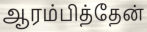
ஆரம்பித்தேன்